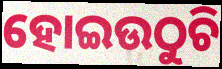
ହୋଇଉଠୁଚି